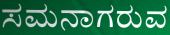
ಸಮನಾಗರುವ